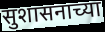
सुशासनाच्या